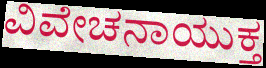
ವಿವೇಚನಾಯುಕ್ತ